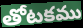
తోటకము